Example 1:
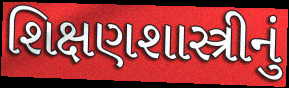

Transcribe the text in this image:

શિક્ષણશાસ્ત્રીનું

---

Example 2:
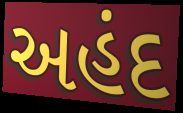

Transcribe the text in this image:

અહંદ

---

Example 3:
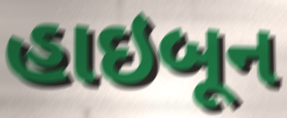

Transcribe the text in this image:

હાઇબૂન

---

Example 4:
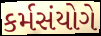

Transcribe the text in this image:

કર્મસંયોગે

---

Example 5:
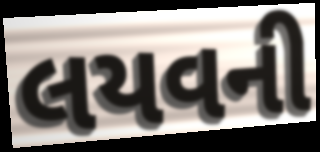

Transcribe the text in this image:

લયવની